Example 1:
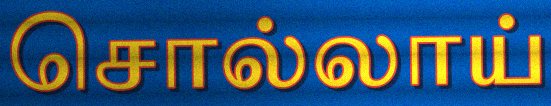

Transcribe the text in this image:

சொல்லாய்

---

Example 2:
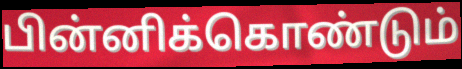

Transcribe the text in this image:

பின்னிக்கொண்டும்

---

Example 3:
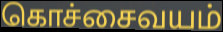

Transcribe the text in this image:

கொச்சைவயம்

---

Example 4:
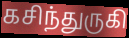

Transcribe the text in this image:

கசிந்துருகி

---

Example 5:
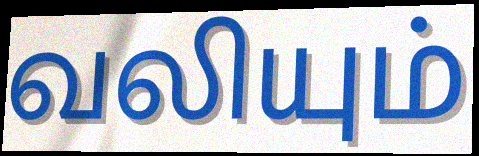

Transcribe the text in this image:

வலியும்